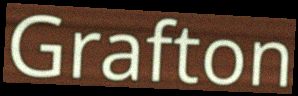
Grafton